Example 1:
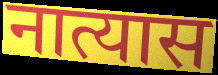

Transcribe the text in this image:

नात्यास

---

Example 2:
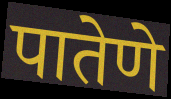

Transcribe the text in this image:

पातेणे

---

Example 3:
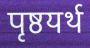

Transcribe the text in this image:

पृष्ठयर्थ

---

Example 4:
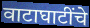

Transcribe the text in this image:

वाटाघाटींचे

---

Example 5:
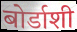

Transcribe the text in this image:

बोर्डाशी